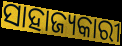
ସାହାଜ୍ଯକାରୀ